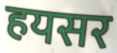
हयसर